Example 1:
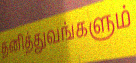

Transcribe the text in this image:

தனித்துவங்களும்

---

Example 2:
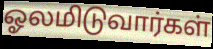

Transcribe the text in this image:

ஓலமிடுவார்கள்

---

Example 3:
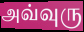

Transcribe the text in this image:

அவ்வுரு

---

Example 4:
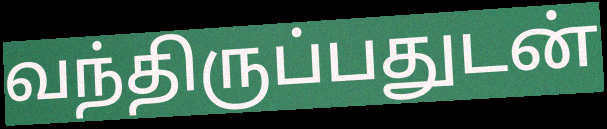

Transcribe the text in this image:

வந்திருப்பதுடன்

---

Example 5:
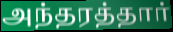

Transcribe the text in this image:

அந்தரத்தார்